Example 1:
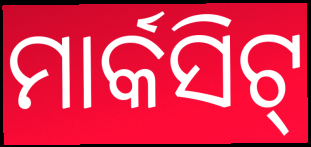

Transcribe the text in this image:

ମାର୍କସିଟ୍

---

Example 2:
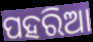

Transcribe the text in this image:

ପହରିଆ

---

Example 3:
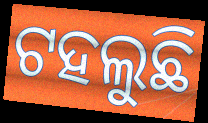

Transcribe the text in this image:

ଟହଲୁଛି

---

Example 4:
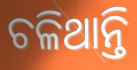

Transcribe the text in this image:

ଚଳିଥାନ୍ତି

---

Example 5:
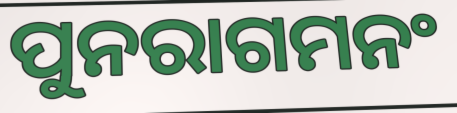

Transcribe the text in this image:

ପୁନରାଗମନଂ